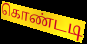
கொண்டடி